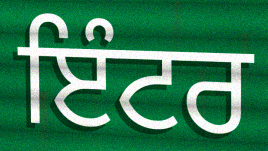
ਇੰਟਰ